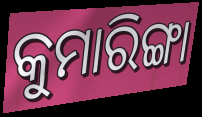
କୁମାରିଙ୍ଗା